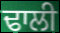
ਢਾਲੀ